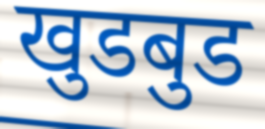
खुडबुड